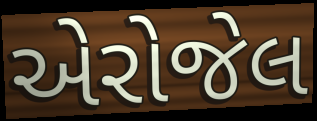
એરોજેલ